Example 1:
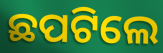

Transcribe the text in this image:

ଛପଟିଲେ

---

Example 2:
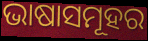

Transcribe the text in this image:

ଭାଷାସମୂହର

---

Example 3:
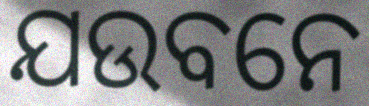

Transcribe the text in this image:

ଯଉବନେ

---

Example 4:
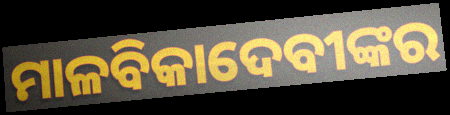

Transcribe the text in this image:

ମାଳବିକାଦେବୀଙ୍କର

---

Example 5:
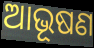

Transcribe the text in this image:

ଆଭୂଷଣ